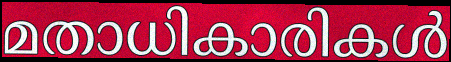
മതാധികാരികൾ